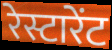
रेस्टारेंट